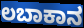
ಲಬಾಕಾನ